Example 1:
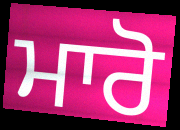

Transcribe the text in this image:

ਮਾਰੋ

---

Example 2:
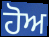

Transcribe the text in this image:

ਹੋਅ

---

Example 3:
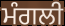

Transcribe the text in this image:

ਮੰਗਲੀ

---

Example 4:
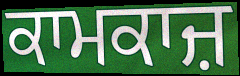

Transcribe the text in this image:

ਕਾਮਕਾਜ਼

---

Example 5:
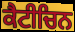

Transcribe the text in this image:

ਕੈਟੀਚਿਨ